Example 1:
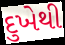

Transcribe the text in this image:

દુખેથી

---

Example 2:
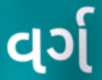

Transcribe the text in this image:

વર્ગ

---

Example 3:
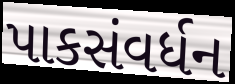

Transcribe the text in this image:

પાકસંવર્ધન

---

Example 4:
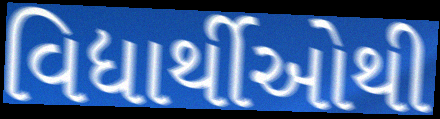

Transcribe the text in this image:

વિદ્યાર્થીઓથી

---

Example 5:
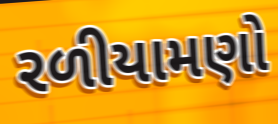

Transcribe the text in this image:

રળીયામણો